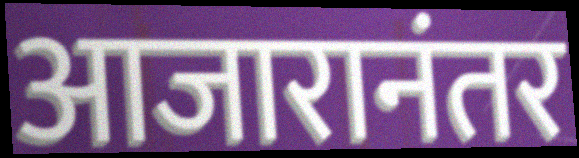
आजारानंतर